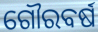
ଗୌରବର୍ଷ